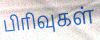
பிரிவுகள்